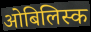
ओबिलिस्क